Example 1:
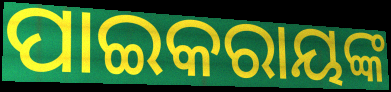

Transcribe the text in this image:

ପାଇକରାୟଙ୍କ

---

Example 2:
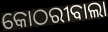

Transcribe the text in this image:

କୋଠରୀବାଲା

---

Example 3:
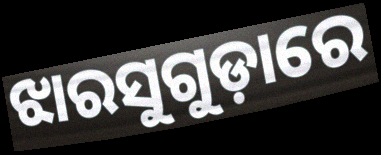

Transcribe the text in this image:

ଝାରସୁଗୁଡ଼ାରେ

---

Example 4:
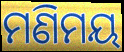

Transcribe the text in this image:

ମଣିମୟ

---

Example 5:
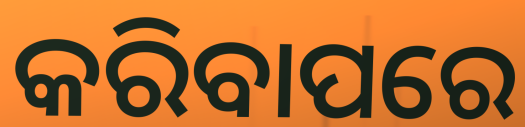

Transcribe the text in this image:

କରିବାପରେ